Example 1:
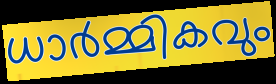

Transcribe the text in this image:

ധാർമ്മികവും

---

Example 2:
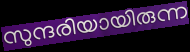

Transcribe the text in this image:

സുന്ദരിയായിരുന്ന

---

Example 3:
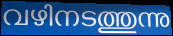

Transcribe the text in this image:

വഴിനടത്തുന്നു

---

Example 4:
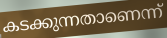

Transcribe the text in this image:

കടക്കുന്നതാണെന്ന്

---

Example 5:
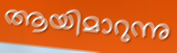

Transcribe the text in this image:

ആയിമാറുന്നു